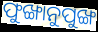
ଫୁଙ୍ଖାନୁପୁଙ୍ଖ